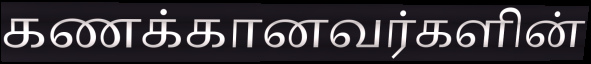
கணக்கானவர்களின்